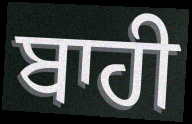
ਬਾਹੀ